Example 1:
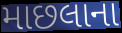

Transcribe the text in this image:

માછલાના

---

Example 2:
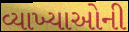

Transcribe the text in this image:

વ્યાખ્યાઓની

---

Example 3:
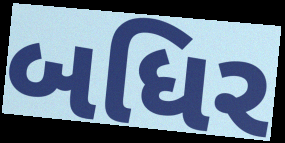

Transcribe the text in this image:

બધિર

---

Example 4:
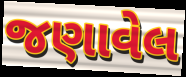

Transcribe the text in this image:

જણાવેલ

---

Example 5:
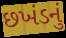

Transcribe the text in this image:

છખંડનું